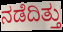
ನಡೆದಿತ್ತು